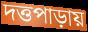
দত্তপাড়ায়